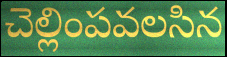
చెల్లింపవలసిన